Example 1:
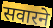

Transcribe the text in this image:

सवारने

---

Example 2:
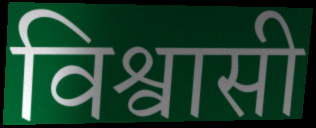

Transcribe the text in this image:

विश्वासी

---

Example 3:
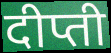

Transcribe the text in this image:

दीप्ती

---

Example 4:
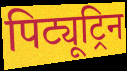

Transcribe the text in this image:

पिट्यूट्रिन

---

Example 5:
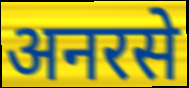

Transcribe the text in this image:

अनरसे